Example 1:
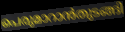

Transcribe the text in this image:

പെരുമാറാൻതുടങ്ങി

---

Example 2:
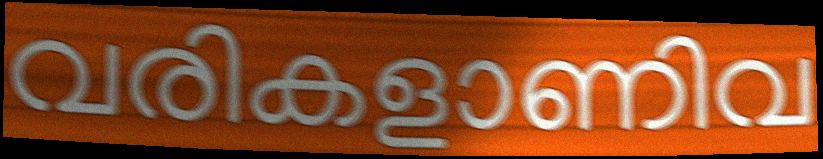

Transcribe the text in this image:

വരികളാണിവ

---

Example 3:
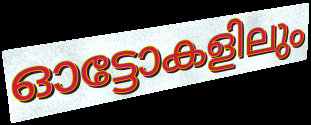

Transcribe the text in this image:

ഓട്ടോകളിലും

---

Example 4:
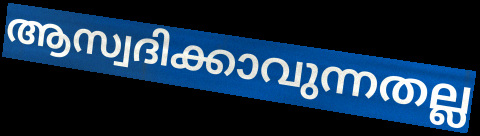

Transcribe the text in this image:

ആസ്വദിക്കാവുന്നതല്ല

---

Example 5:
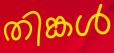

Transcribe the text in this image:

തിങ്കൾ